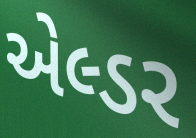
એલ્ડર